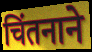
चिंतनाने